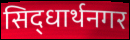
सिद्धार्थनगर